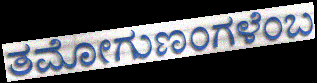
ತಮೋಗುಣಂಗಳೆಂಬ